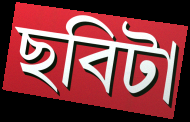
ছবিটা